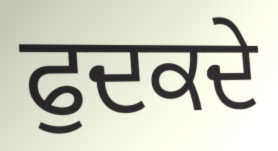
ਫੁਦਕਦੇ